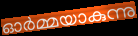
ഓർമ്മയാകുന്നു